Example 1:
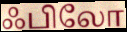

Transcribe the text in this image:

ஃபிலோ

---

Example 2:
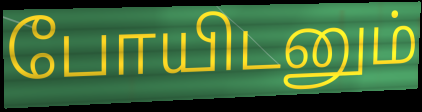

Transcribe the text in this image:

போயிடனும்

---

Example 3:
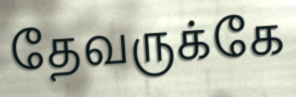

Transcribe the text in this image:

தேவருக்கே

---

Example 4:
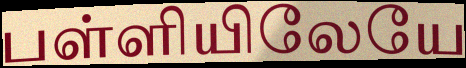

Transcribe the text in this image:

பள்ளியிலேயே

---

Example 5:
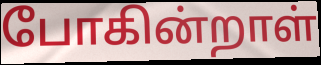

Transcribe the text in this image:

போகின்றாள்